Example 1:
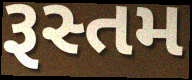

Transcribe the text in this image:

રૂસ્તમ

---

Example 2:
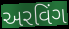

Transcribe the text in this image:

અરવિંગ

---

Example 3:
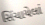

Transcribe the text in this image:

સિંચાયેલાં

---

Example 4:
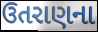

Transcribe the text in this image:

ઉતરાણના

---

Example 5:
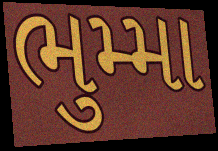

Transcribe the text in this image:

ભુમ્મા